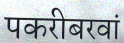
पकरीबरवां